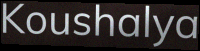
Koushalya